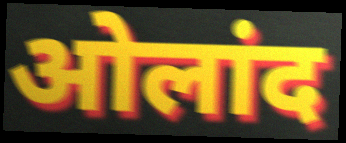
ओलांद